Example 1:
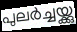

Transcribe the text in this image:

പുലർച്ചയ്ക്കു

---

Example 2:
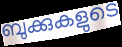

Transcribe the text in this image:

ബുക്കുകളുടെ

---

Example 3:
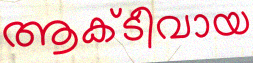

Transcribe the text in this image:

ആക്ടീവായ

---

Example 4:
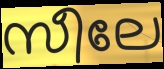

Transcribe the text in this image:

സീലേ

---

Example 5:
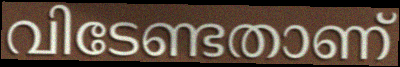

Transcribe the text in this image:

വിടേണ്ടതാണ്